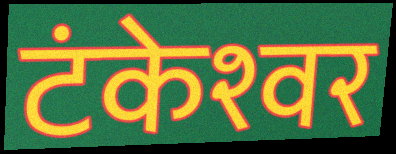
टंकेश्वर